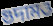
গুদামও